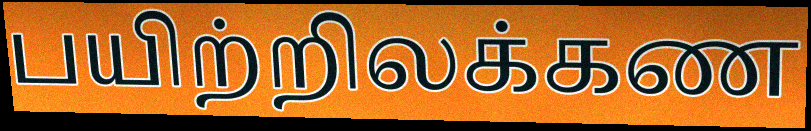
பயிற்றிலக்கண